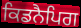
ਕਿਡਨੈਪਿਗ